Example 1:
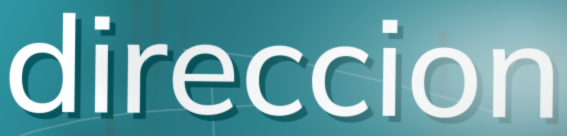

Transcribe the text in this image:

direccion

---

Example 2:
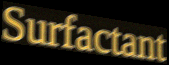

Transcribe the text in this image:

Surfactant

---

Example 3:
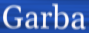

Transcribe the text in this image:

Garba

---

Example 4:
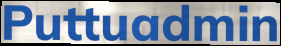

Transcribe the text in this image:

Puttuadmin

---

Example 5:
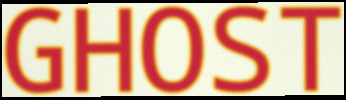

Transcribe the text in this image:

GHOST